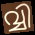
വ്വി